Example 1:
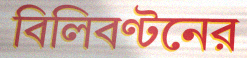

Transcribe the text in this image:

বিলিবণ্টনের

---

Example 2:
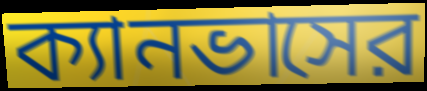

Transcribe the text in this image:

ক্যানভাসের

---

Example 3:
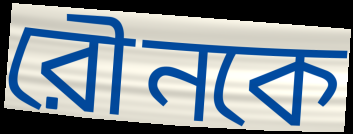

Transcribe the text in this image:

রৌনকে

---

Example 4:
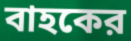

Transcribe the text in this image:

বাহকের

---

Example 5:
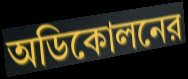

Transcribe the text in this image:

অডিকোলনের